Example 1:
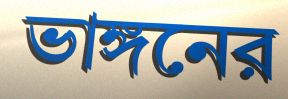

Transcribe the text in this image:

ভাঙ্গনের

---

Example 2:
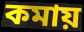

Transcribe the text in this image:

কমায়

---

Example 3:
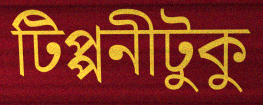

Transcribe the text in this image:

টিপ্পনীটুকু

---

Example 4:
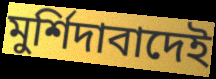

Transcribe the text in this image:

মুর্শিদাবাদেই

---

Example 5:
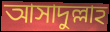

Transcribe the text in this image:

আসাদুল্লাহ